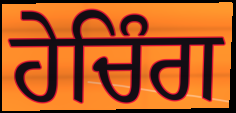
ਹੇਚਿੰਗ